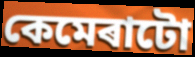
কেমেৰাটো